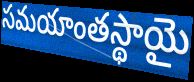
సమయాంతస్థాయై